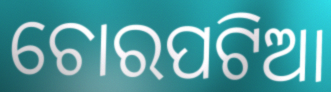
ଚୋରପଟିଆ